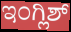
ಇಂಗ್ಲಿಶ್